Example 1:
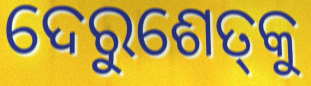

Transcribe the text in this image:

ଦେରୁଶେତ୍‌କୁ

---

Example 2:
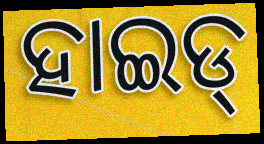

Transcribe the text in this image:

ହାଇଡ୍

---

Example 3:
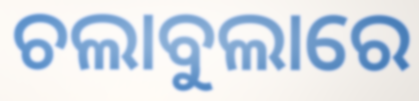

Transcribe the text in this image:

ଚଲାବୁଲାରେ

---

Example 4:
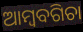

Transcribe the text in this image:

ଆମ୍ବବଗିଚା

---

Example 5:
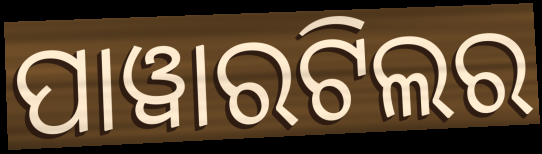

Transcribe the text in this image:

ପାୱାରଟିଲର